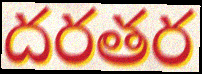
దరతర